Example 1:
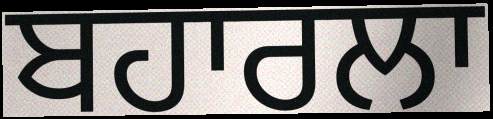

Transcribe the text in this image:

ਬਹਾਰਲਾ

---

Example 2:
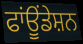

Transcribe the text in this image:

ਫਾਂਊਂਡੇਸ਼ਨ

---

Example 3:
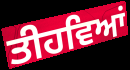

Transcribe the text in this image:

ਤੀਹਵਿਆਂ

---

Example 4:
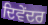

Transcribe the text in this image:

ਦਿਵੇਂਦਰ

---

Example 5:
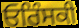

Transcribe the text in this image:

ਓਰਿੰਸਕੀ